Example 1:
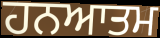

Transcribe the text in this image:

ਹਨਆਤਮ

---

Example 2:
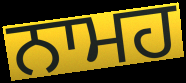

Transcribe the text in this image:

ਨਾਮਹ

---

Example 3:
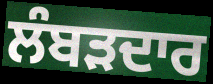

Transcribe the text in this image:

ਲੰਬੜਦਾਰ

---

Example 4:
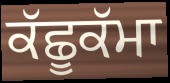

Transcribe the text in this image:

ਕੱਛੂਕੱਮਾ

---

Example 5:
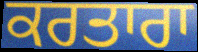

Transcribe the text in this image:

ਕਰਤਾਰਾ